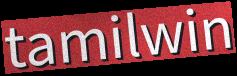
tamilwin